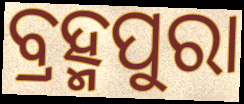
ବ୍ରହ୍ମପୁରା